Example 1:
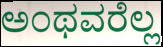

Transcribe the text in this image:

ಅಂಥವರೆಲ್ಲ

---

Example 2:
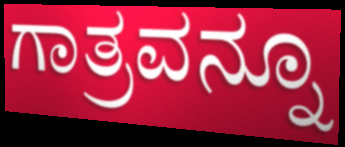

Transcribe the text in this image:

ಗಾತ್ರವನ್ನೂ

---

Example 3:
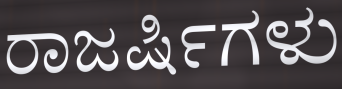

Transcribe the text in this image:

ರಾಜರ್ಷಿಗಳು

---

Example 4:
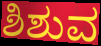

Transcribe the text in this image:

ಶಿಶುವ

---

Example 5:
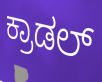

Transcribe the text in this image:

ಕ್ರಾಡಲ್